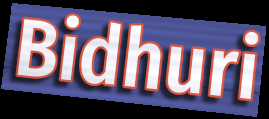
Bidhuri